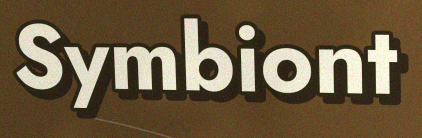
Symbiont